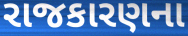
રાજકારણના